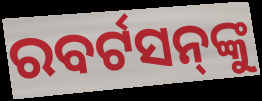
ରବର୍ଟସନ୍‌ଙ୍କୁ